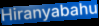
Hiranyabahu